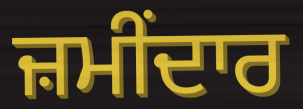
ਜ਼ਮੀਂਦਾਰ